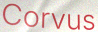
Corvus